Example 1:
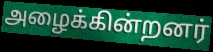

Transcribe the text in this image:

அழைக்கின்றனர்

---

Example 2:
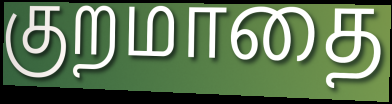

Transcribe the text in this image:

குறமாதை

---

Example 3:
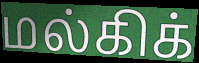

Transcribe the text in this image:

மல்கிக்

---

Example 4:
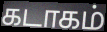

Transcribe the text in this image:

கடாகம்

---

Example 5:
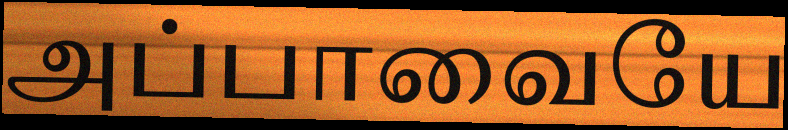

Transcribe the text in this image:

அப்பாவையே